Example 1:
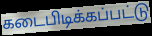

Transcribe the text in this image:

கடைபிடிக்கப்பட்டு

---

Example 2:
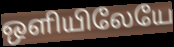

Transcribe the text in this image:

ஒளியிலேயே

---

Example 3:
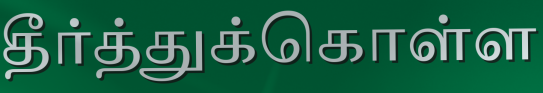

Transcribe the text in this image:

தீர்த்துக்கொள்ள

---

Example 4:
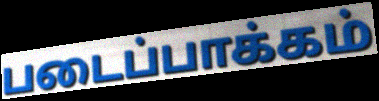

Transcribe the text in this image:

படைப்பாக்கம்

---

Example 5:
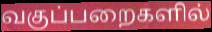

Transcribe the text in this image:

வகுப்பறைகளில்